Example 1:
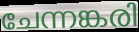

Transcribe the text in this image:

ചേന്നങ്കരി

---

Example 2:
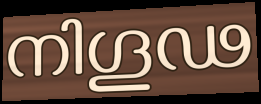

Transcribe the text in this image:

നിഗൂഢ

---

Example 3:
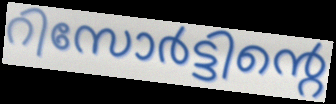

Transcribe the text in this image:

റിസോർട്ടിന്റെ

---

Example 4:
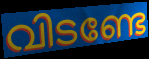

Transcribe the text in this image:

വിടണ്ടേ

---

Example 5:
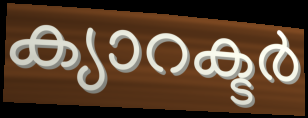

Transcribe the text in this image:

ക്യാറക്ടർ